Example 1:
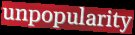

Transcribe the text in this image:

unpopularity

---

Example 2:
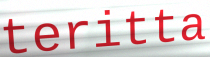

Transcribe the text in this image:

teritta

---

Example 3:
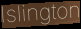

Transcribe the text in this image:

Islington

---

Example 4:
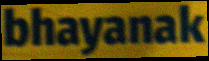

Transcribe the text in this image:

bhayanak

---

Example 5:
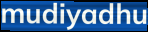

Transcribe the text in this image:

mudiyadhu